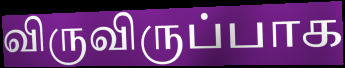
விருவிருப்பாக